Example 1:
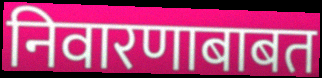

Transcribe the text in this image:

निवारणाबाबत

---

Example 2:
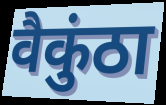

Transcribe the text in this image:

वैकुंठा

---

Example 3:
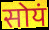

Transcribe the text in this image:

सोयं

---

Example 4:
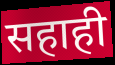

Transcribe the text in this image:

सहाही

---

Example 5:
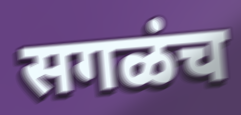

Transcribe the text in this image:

सगळंच